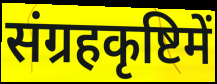
संग्रहकृष्टिमें